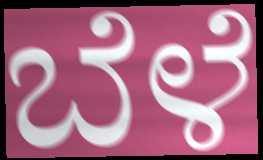
ಬೆಳೆ